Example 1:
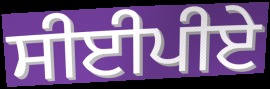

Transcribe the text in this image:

ਸੀਈਪੀਏ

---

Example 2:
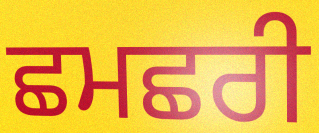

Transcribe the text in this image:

ਛਮਛਰੀ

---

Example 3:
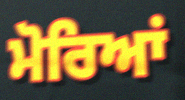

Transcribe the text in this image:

ਮੋਰਿਆਂ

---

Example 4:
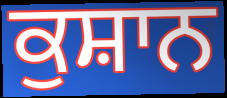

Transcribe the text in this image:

ਕੁਸ਼ਾਨ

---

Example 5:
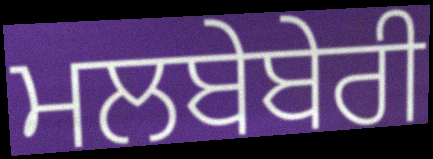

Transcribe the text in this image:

ਮਲਬੇਬੇਰੀ